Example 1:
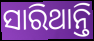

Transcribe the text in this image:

ସାରିଥାନ୍ତି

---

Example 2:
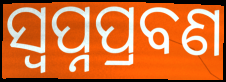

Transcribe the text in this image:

ସ୍ଵପ୍ନପ୍ରବଣ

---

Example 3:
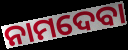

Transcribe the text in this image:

ନାମଦେବା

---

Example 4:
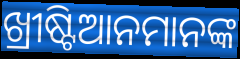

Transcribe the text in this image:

ଖ୍ରୀଷ୍ଟିଆନମାନଙ୍କ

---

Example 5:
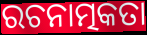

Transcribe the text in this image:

ରଚନାତ୍ମକତା